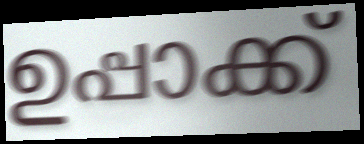
ഉപ്പാക്ക്